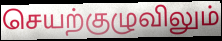
செயற்குழுவிலும்